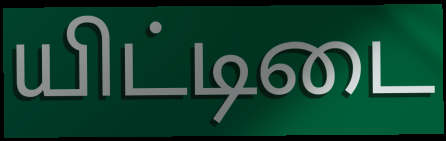
யிட்டிடை